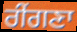
ਰੀਂਗਣਾ